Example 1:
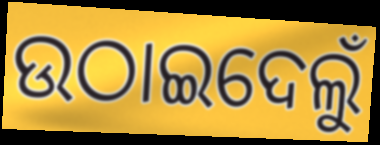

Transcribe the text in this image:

ଉଠାଇଦେଲୁଁ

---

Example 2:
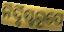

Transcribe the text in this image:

ନିର୍ଦ୍ଦିଷ୍ଟରୂପେ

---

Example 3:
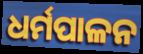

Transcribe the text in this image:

ଧର୍ମପାଳନ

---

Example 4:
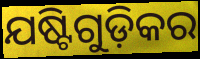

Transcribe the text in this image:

ଯଷ୍ଟିଗୁଡ଼ିକର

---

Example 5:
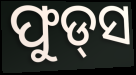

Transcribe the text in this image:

ଫୁଡ୍‌ସ